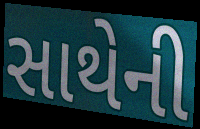
સાથેની